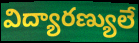
విద్యారణ్యులే